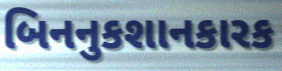
બિનનુકશાનકારક